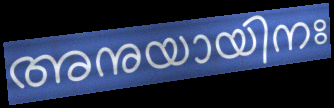
അനുയായിനഃ